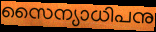
സൈന്യാധിപനു